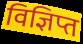
विज्ञिप्त